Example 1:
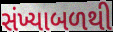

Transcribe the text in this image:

સંખ્યાબળથી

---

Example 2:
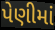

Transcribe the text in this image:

પેણીમાં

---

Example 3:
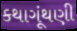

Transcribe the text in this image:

કથાગૂંથણી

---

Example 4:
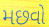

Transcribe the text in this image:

મછવો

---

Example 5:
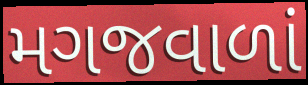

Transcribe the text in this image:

મગજવાળાં